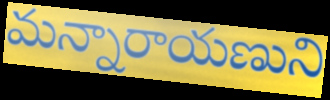
మన్నారాయణుని